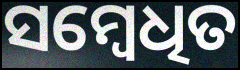
ସମ୍ବେଧିତ